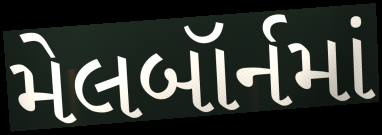
મેલબૉર્નમાં